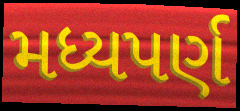
મધ્યપર્ણ